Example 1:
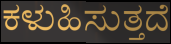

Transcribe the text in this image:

ಕಳುಹಿಸುತ್ತದೆ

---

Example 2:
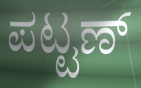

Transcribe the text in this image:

ಪಟ್ಟಣ್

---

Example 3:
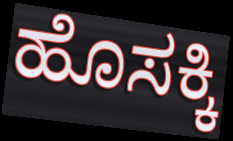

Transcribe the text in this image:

ಹೊಸಕ್ಕಿ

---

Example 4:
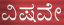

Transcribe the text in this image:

ವಿಷವೇ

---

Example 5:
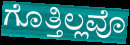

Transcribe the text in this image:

ಗೊತ್ತಿಲ್ಲವೊ